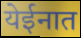
येईनात